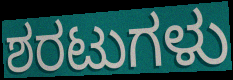
ಶರಟುಗಳು